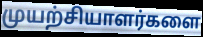
முயற்சியாளர்களை